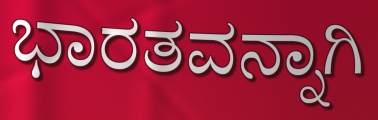
ಭಾರತವನ್ನಾಗಿ